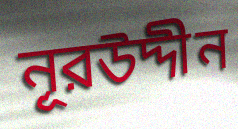
নূরউদ্দীন